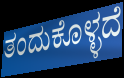
ತಂದುಕೊಳ್ಳದೆ